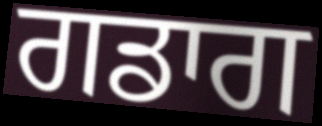
ਗਡਾਗ